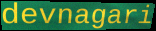
devnagari